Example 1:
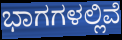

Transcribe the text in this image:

ಭಾಗಗಳಲ್ಲಿವೆ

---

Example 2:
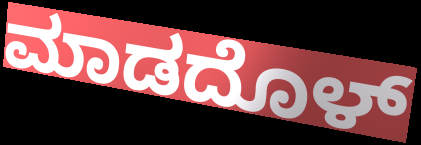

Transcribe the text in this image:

ಮಾಡದೊಳ್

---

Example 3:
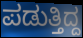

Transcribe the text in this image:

ಪಡುತ್ತಿದ್ದ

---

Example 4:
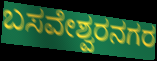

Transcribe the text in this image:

ಬಸವೇಶ್ವರನಗರ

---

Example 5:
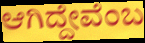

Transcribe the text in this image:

ಆಗಿದ್ದೇವೆಂಬ